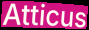
Atticus